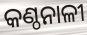
କଣ୍ଠନାଳୀ